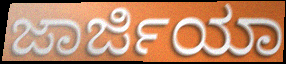
ಜಾರ್ಜಿಯಾ